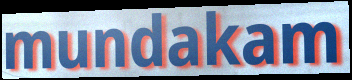
mundakam